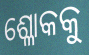
ଶ୍ଳୋକକୁ